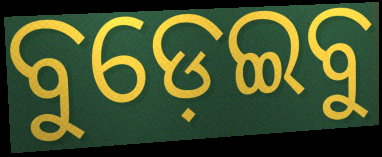
ବୁଡ଼େଇବୁ